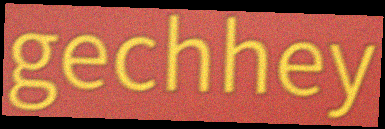
gechhey